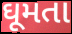
ઘૂમતા